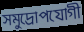
সমুদ্রোপযোগী